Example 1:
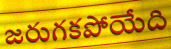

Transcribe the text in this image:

జరుగకపోయేది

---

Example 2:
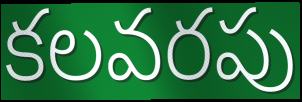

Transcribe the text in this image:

కలవరపు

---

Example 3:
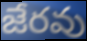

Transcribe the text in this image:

జేరవు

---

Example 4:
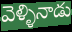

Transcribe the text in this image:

వెళ్ళినాడు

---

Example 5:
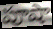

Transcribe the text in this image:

పూషా